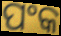
ପଂକ